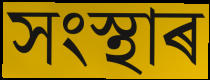
সংস্থাৰ